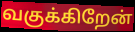
வகுக்கிறேன்